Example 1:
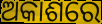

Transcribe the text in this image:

ଅକାଶରେ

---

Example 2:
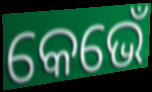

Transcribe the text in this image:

କେଭେଁ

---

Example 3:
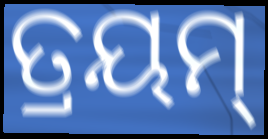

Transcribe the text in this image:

ତ୍ରୟମ୍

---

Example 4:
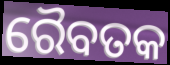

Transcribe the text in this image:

ରୈବତକ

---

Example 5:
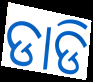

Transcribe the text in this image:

ଡାଡି